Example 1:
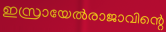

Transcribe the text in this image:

ഇസ്രായേൽരാജാവിന്റെ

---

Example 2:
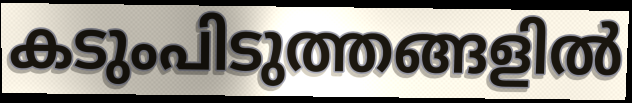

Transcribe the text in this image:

കടുംപിടുത്തങ്ങളിൽ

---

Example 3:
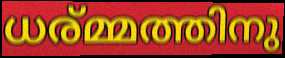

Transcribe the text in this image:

ധര്മ്മത്തിനു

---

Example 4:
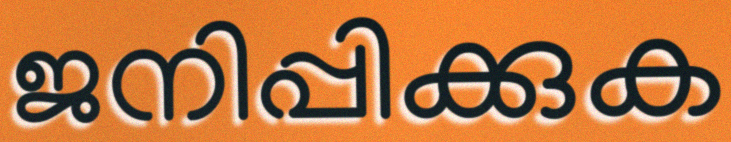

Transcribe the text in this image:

ജനിപ്പിക്കുക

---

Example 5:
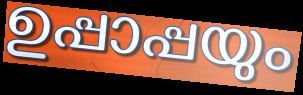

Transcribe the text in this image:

ഉപ്പാപ്പയും